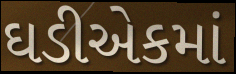
ઘડીએકમાં